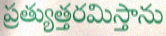
ప్రత్యుత్తరమిస్తాను